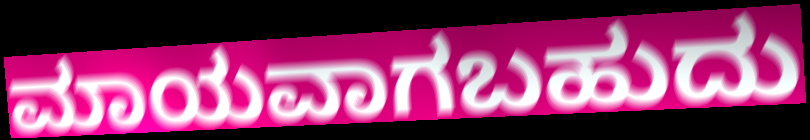
ಮಾಯವಾಗಬಹುದು